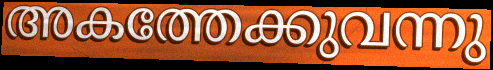
അകത്തേക്കുവന്നു